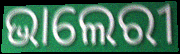
ଭାଲେରୀ